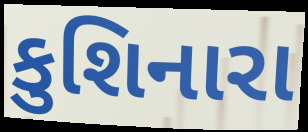
કુશિનારા